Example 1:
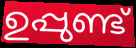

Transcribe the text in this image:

ഉപ്പുണ്ട്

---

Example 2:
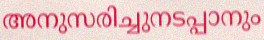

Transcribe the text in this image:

അനുസരിച്ചുനടപ്പാനും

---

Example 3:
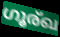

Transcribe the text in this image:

ഗൂര്ഖ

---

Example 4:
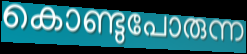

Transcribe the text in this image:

കൊണ്ടുപോരുന്ന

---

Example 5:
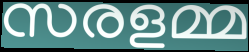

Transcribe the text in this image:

സരളമ്മ